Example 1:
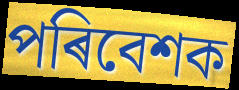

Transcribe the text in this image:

পৰিবেশক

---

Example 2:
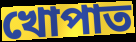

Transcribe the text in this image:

খোপাত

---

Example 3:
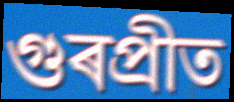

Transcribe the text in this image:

গুৰপ্ৰীত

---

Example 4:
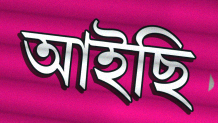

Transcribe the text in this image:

আইছি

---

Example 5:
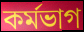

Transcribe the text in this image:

কৰ্মভাগ